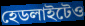
হেডলাইটেও